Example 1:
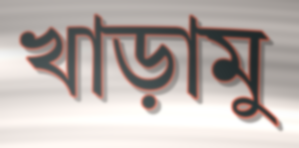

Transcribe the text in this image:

খাড়ামু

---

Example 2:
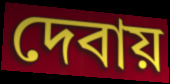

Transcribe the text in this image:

দেবায়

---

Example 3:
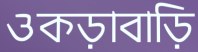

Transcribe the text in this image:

ওকড়াবাড়ি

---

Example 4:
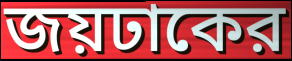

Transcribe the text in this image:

জয়ঢাকের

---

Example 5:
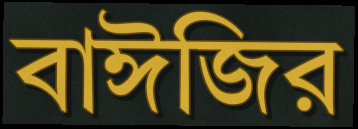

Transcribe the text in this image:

বাঈজির